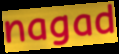
nagad